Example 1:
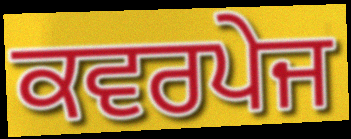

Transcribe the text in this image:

ਕਵਰਪੇਜ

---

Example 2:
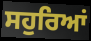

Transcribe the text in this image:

ਸਹੁਰਿਆਂ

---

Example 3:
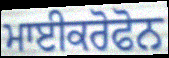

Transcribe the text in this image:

ਮਾਈਕਰੋਫੋਨ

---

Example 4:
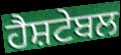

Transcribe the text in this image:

ਹੈਸ਼ਟੇਬਲ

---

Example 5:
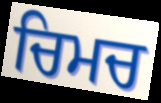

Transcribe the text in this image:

ਚਿਮਚ